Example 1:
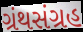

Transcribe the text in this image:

ગ્રંથસંગ્રહ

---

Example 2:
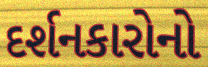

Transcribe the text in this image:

દર્શનકારોનો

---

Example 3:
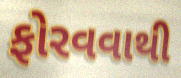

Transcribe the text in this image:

ફોરવવાથી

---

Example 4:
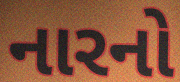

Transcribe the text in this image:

નારનો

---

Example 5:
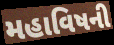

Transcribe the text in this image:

મહાવિષની